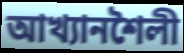
আখ্যানশৈলী